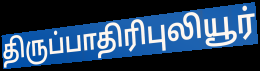
திருப்பாதிரிபுலியூர்